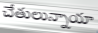
చేతులున్నాయా